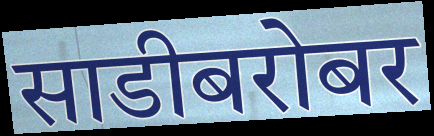
साडीबरोबर